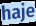
haje